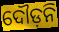
ଦୌଡ଼ନି